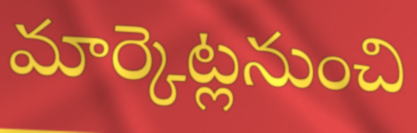
మార్కెట్లనుంచి